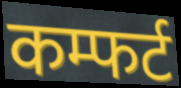
कम्फर्ट